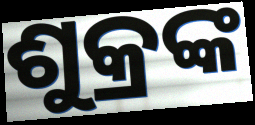
ଶୁକ୍ରଙ୍କ